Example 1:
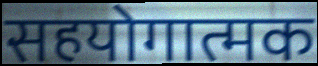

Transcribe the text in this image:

सहयोगात्मक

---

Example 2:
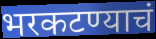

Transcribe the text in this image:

भरकटण्याचं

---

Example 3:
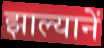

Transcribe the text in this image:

झाल्यानें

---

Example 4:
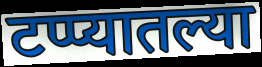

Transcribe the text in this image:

टप्प्यातल्या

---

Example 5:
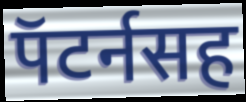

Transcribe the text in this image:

पॅटर्नसह